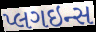
પ્લગઇન્સ